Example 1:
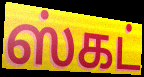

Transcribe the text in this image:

ஸ்கட்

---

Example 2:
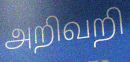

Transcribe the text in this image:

அறிவறி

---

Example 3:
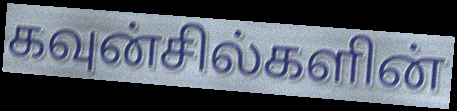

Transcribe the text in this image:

கவுன்சில்களின்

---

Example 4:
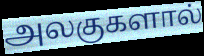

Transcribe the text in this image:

அலகுகளால்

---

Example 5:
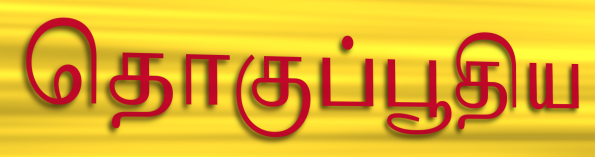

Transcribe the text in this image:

தொகுப்பூதிய